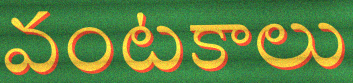
వంటకాలు